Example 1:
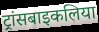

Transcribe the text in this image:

ट्रांसबाइकलिया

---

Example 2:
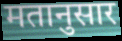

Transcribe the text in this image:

मतानुसार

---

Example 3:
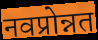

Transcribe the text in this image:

नवप्रोन्नत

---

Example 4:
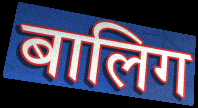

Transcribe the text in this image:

बालिग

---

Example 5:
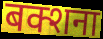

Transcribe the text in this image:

बक्शना